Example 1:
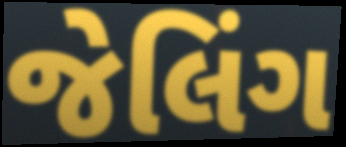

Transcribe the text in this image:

જેલિંગ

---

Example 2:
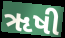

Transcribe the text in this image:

ૠષી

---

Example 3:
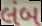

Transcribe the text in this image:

લંબ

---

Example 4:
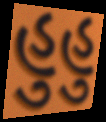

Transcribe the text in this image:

હુહુ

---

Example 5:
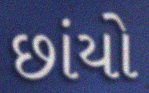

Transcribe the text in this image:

છાંયો